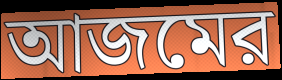
আজমের